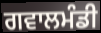
ਗਵਾਲਮੰਡੀ